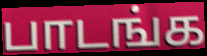
பாடங்க